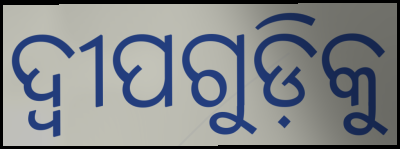
ଦ୍ୱୀପଗୁଡ଼ିକୁ